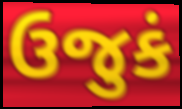
ઉજુકં